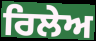
ਰਿਲੇਅ